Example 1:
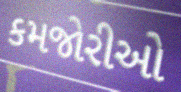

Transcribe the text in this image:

કમજોરીઓ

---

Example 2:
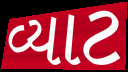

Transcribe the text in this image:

વ્યાટ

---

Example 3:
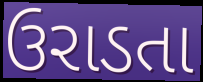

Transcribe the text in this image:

ઉરાડતા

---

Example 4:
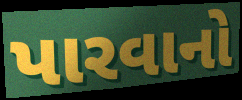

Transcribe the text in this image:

પારવાનો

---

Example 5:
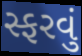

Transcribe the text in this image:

સ્ફરવું